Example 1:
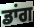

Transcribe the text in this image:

ਡਾਂਗ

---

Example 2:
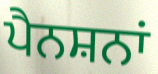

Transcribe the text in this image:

ਪੈਨਸ਼ਨਾਂ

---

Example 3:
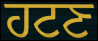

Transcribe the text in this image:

ਹਟਣ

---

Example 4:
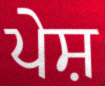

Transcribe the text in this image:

ਪੇਸ਼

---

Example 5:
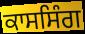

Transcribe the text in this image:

ਕਾਸਸਿੰਗ